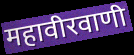
महावीरवाणी